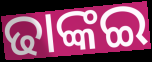
ଢାଙ୍କଇ